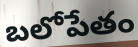
బలోపేతం